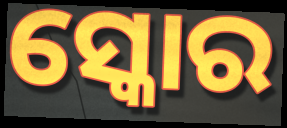
ସ୍କୋର